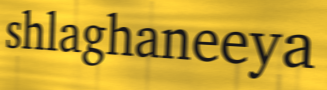
shlaghaneeya